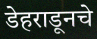
डेहराडूनचे